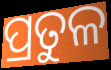
ପ୍ରତୁଳ